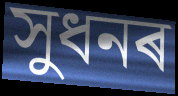
সুধনৰ